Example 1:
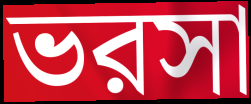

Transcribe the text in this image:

ভরসা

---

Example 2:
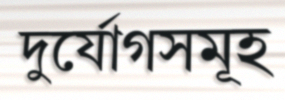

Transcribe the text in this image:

দুর্যোগসমূহ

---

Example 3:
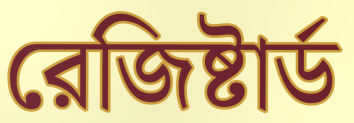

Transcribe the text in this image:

রেজিষ্টার্ড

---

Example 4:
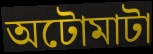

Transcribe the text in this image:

অটোমাটা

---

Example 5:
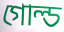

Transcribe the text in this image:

গোল্ড